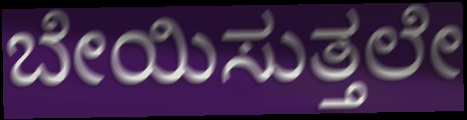
ಬೇಯಿಸುತ್ತಲೇ